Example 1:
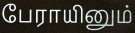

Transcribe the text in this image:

பேராயினும்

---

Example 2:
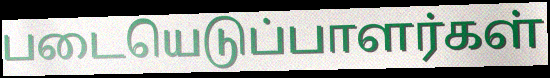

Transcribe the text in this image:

படையெடுப்பாளர்கள்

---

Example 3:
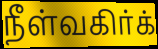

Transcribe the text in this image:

நீள்வகிர்க்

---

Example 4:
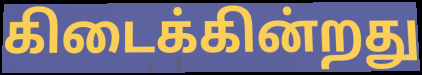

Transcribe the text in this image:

கிடைக்கின்றது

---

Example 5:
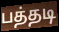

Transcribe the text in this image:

பத்தடி